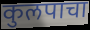
कुलपाचा